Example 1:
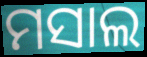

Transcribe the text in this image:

ମସାଲ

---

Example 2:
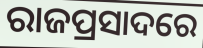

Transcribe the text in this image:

ରାଜପ୍ରସାଦରେ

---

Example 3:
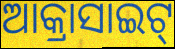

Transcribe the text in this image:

ଆକ୍ରାସାଇଟ୍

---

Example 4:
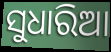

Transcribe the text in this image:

ସୁଧାରିଆ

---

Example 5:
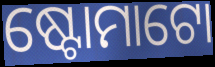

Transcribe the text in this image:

ଷ୍ଟୋମାଟୋ